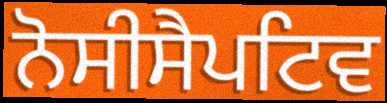
ਨੋਸੀਸੈਪਟਿਵ